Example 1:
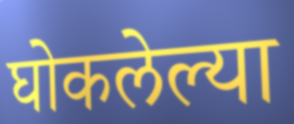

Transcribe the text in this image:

घोकलेल्या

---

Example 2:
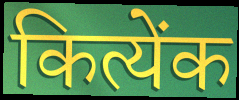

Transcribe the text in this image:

कित्येंक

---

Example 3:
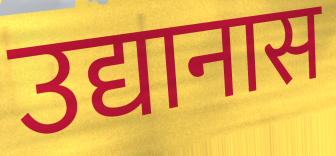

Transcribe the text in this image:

उद्यानास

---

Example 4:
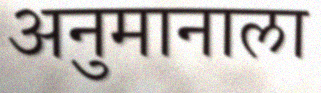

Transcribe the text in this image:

अनुमानाला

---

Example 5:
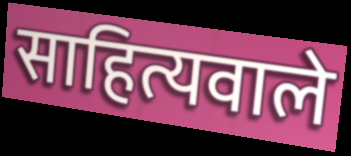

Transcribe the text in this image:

साहित्यवाले